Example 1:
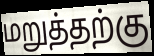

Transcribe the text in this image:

மறுத்தற்கு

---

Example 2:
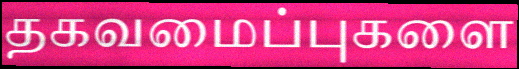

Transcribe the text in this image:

தகவமைப்புகளை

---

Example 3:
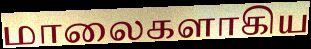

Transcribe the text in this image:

மாலைகளாகிய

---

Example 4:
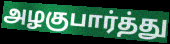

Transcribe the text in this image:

அழகுபார்த்து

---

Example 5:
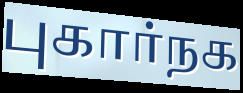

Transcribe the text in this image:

புகார்நக